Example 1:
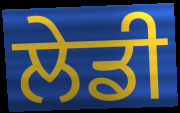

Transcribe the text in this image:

ਲੇਡੀ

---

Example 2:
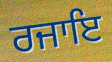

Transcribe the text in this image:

ਰਜਾਇ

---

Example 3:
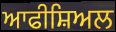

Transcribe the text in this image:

ਆਫੀਸ਼ਿਅਲ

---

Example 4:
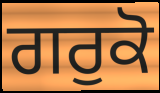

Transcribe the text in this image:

ਗਰੁਕੋ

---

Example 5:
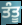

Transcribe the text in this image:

ਤੰਤੂ